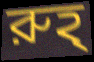
রুহ্